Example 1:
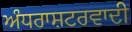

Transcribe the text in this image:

ਅੰਧਰਾਸ਼ਟਰਵਾਦੀ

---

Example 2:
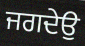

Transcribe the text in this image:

ਜਗਦੇਉ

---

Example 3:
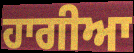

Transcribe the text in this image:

ਹਾਗੀਆ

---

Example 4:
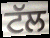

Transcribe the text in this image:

ਟੱਲ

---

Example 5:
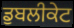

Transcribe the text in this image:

ਡੁਬਲੀਕੇਟ